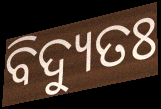
ବିଦ୍ୟୁତଃ